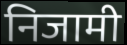
निजामी